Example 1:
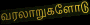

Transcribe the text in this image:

வரலாறுகளோடு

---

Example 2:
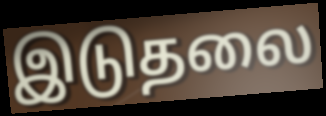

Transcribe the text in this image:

இடுதலை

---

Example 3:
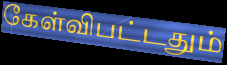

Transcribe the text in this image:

கேள்விபட்டதும்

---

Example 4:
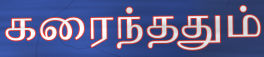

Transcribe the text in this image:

கரைந்ததும்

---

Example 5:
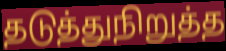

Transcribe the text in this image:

தடுத்துநிறுத்த